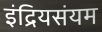
इंद्रियसंयम